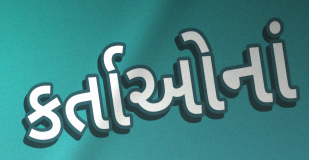
કર્તાઓનાં